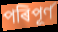
পৰিপূৰ্ণ